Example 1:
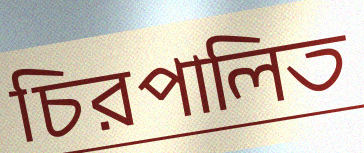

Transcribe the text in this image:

চিরপালিত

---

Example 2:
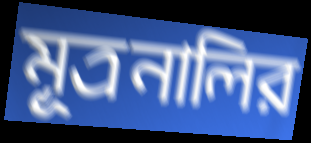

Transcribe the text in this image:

মূত্রনালির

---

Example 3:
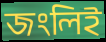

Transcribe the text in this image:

জংলিই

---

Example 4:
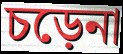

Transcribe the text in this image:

চড়েনা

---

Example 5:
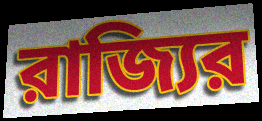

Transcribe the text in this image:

রাজ্যির